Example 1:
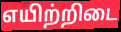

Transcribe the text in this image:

எயிற்றிடை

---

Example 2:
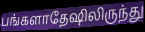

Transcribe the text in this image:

பங்களாதேஷிலிருந்து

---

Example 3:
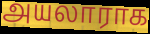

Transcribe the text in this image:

அயலாராக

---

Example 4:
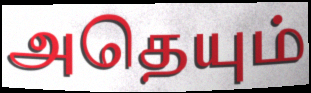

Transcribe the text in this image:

அதெயும்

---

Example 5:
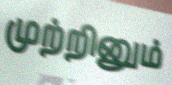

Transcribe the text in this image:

முற்றினும்